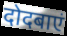
दोदबाएं